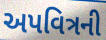
અપવિત્રની